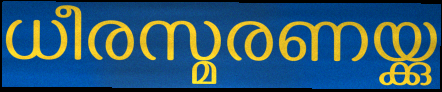
ധീരസ്മരണയ്ക്കു